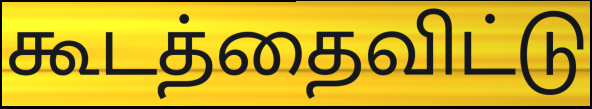
கூடத்தைவிட்டு